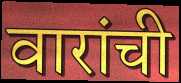
वारांची